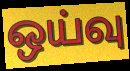
ஒய்வு